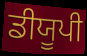
ਡੀਯੂਪੀ